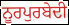
ਨੂਰਪੁਰਬੇਦੀ